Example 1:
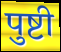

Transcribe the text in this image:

पुष्टी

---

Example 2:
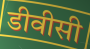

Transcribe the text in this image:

डीवीसी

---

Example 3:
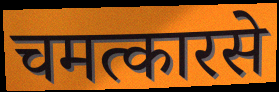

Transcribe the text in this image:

चमत्कारसे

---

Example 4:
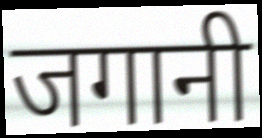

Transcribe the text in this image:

जगानी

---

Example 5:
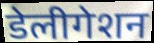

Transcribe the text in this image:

डेलीगेशन